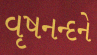
વૃષનન્દને